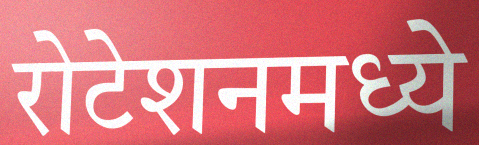
रोटेशनमध्ये